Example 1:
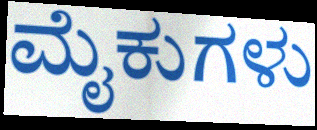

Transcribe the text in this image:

ಮೈಕುಗಳು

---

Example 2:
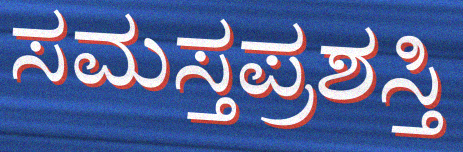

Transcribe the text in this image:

ಸಮಸ್ತಪ್ರಶಸ್ತಿ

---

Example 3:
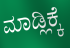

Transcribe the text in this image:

ಮಾಡ್ಲಿಕ್ಕೆ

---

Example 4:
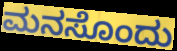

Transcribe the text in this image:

ಮನಸೊಂದು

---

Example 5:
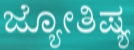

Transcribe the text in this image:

ಜ್ಯೋತಿಷ್ಯ